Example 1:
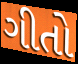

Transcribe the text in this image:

ગીતો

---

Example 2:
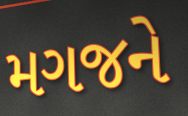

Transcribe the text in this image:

મગજને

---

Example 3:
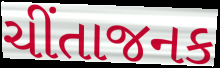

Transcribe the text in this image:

ચીંતાજનક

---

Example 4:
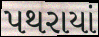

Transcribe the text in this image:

પથરાયાં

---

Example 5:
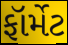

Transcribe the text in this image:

ફૉર્મેટ